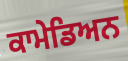
ਕਾਮੇਡਿਅਨ